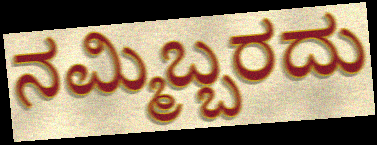
ನಮ್ಮಿಬ್ಬರದು